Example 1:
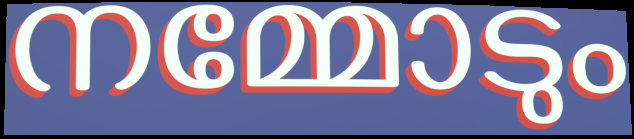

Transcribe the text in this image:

നമ്മോടും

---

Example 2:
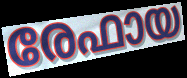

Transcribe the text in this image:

രേഫായ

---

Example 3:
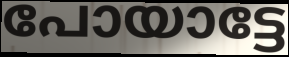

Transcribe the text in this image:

പോയാട്ടേ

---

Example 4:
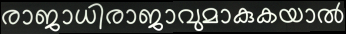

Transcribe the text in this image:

രാജാധിരാജാവുമാകുകയാൽ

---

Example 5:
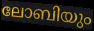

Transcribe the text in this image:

ലോബിയും